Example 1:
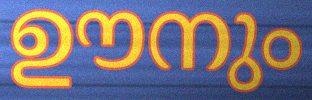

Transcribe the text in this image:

ഊനും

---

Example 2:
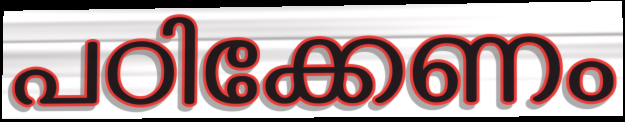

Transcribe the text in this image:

പഠിക്കേണം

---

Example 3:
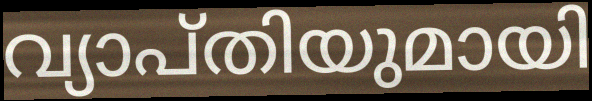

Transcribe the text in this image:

വ്യാപ്തിയുമായി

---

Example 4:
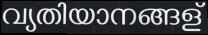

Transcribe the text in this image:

വ്യതിയാനങ്ങള്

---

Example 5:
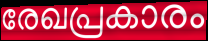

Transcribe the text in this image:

രേഖപ്രകാരം